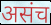
असंच